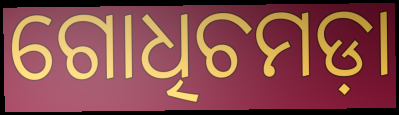
ଗୋଧିଚମଡ଼ା